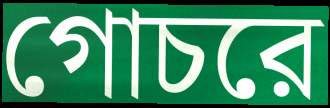
গোচরে